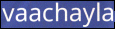
vaachayla